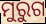
ମୁରୁଗ